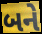
બને